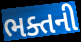
ભક્તની